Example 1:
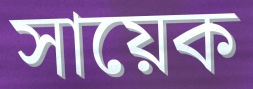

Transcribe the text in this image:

সায়েক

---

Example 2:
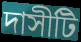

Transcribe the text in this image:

দাসীটি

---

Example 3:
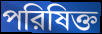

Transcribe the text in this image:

পরিষিক্ত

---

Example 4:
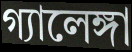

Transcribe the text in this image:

গ্যালেঙ্গা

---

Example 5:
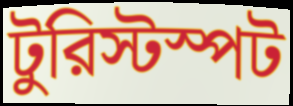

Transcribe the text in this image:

টুরিস্টস্পট